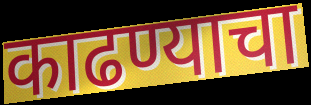
काढण्याचा